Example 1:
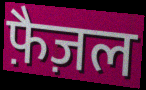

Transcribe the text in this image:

फ़ैज़ल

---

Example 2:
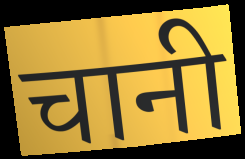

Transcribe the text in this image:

चानी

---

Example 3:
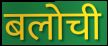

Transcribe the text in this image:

बलोची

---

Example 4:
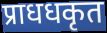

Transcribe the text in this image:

प्राधधकृत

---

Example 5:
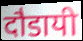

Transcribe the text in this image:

दौडायी